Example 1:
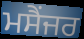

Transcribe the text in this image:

ਮਸੈਂਜਰ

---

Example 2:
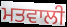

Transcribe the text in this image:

ਮਤਵਾਲੀ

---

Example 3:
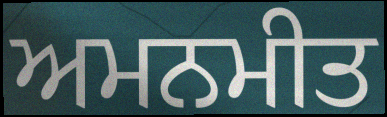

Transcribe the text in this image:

ਅਮਨਮੀਤ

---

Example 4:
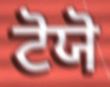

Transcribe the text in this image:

ਟੋਯੋ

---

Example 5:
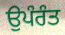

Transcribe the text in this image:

ਉਪੰਰੰਤ